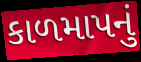
કાળમાપનું